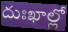
దుఃఖాల్లో